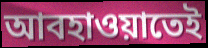
আবহাওয়াতেই